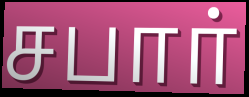
சபார்